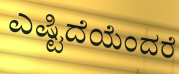
ಎಷ್ಟಿದೆಯೆಂದರೆ